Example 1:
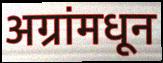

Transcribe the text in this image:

अग्रांमधून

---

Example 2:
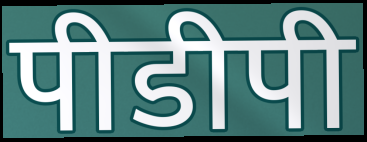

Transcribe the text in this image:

पीडीपी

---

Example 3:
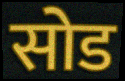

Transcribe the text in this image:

सोड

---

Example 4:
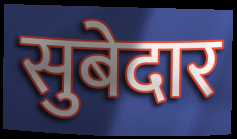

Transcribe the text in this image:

सुबेदार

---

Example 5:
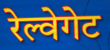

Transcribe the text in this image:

रेल्वेगेट